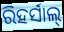
ରିହର୍ସାଲ୍